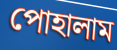
পোহালাম